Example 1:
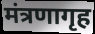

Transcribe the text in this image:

मंत्रणागृह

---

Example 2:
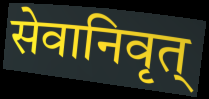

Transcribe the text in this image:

सेवानिवृत्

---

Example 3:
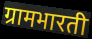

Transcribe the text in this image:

ग्रामभारती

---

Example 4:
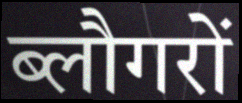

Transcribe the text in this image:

ब्लौगरों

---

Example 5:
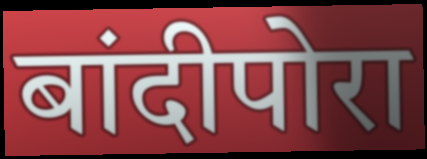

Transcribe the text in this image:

बांदीपोरा